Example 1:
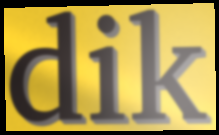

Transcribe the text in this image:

dik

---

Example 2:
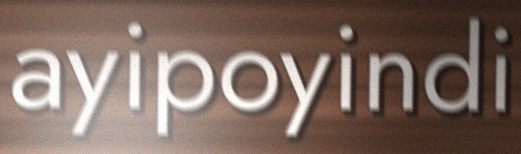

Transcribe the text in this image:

ayipoyindi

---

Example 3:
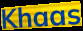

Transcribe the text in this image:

Khaas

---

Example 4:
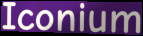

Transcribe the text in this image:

Iconium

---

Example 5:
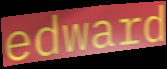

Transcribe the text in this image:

edward